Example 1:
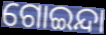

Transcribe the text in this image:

ଗୋଇନ୍ଦା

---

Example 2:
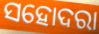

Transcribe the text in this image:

ସହୋଦରା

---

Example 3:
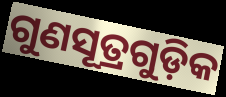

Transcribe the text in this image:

ଗୁଣସୂତ୍ରଗୁଡ଼ିକ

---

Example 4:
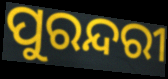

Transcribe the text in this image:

ପୁରନ୍ଦରୀ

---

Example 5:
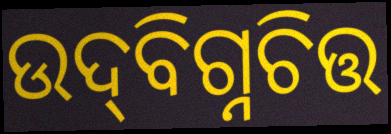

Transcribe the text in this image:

ଉଦ୍‌ବିଗ୍ନଚିତ୍ତ